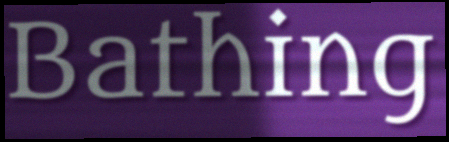
Bathing